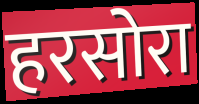
हरसोरा